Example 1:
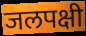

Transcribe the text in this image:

जलपक्षी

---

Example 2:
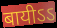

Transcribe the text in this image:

बायीऽऽ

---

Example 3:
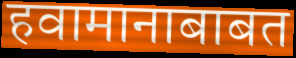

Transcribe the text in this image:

हवामानाबाबत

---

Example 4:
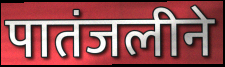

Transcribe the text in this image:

पातंजलीने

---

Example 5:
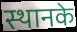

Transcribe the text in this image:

स्थानके